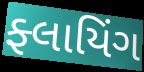
ફ્લાયિંગ